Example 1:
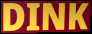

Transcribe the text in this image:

DINK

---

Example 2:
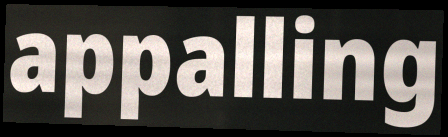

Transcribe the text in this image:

appalling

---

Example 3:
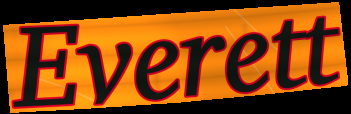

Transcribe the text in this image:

Everett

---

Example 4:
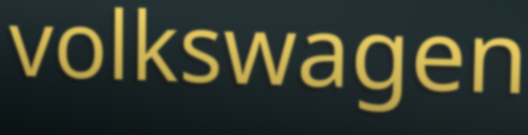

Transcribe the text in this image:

volkswagen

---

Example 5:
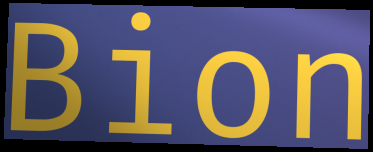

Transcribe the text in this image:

Bion